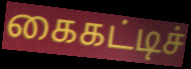
கைகட்டிச்